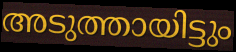
അടുത്തായിട്ടും